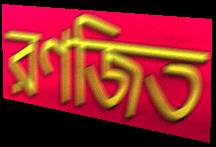
রণজিত